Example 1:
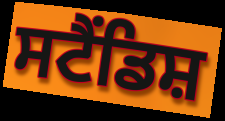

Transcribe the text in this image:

ਸਟੈਂਡਿਸ਼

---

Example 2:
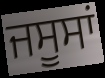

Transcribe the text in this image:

ਜਸੂਸਾਂ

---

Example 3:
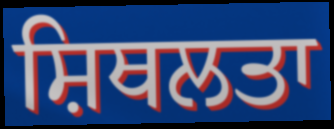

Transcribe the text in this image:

ਸ਼ਿਥਲਤਾ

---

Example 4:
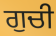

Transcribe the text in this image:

ਗੁਚੀ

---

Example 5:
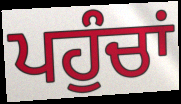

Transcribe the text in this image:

ਪਹੁੰਚਾਂ